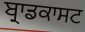
ਬ੍ਰਾਡਕਾਸਟ